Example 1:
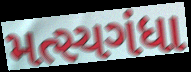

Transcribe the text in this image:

મત્સ્યગંધા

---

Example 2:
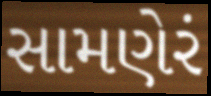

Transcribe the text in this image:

સામણેરં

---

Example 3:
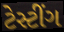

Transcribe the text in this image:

ટેસ્ટીંગ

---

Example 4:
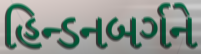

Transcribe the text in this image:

હિન્ડનબર્ગને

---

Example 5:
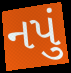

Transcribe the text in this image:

નપું